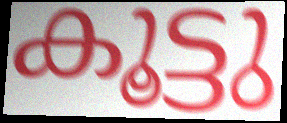
കൂട്ടു